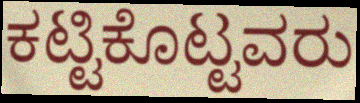
ಕಟ್ಟಿಕೊಟ್ಟವರು